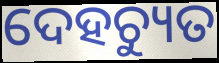
ଦେହଚ୍ୟୁତ